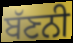
ਬੱਣਨੀ